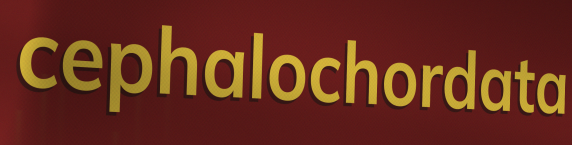
cephalochordata